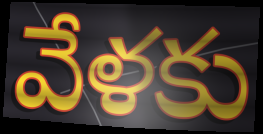
వేళకు